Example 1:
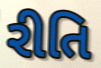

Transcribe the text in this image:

રીતિ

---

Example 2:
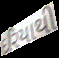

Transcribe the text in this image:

દરિયાથી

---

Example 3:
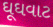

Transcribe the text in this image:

ઘૂઘવાટ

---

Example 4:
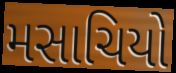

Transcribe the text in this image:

મસાચિયો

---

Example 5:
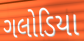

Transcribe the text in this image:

ગલોડિયા